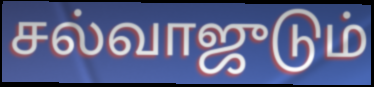
சல்வாஜுடும்